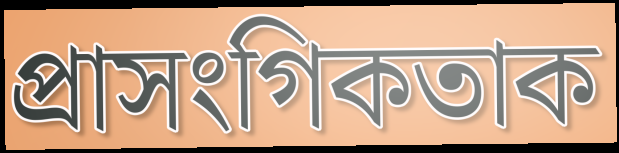
প্ৰাসংগিকতাক